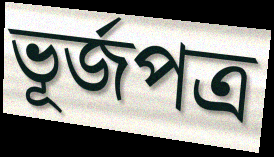
ভূর্জপত্র